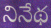
నినేథ